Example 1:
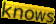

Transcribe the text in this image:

knows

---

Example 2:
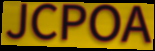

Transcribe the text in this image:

JCPOA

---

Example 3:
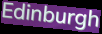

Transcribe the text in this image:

Edinburgh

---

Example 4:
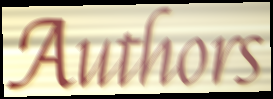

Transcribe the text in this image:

Authors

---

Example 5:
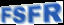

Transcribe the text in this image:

FSFR